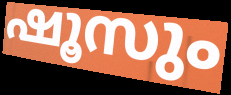
ഷൂസും